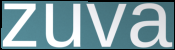
zuva